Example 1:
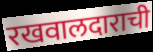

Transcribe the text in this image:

रखवालदाराची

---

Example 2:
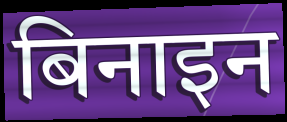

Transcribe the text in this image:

बिनाइन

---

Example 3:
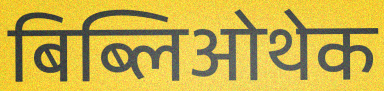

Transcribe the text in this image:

बिब्लिओथेक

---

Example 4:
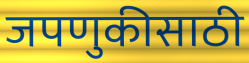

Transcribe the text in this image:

जपणुकीसाठी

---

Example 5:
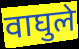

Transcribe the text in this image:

वाघुले